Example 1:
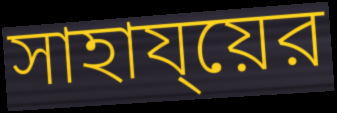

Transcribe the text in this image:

সাহায্য়ের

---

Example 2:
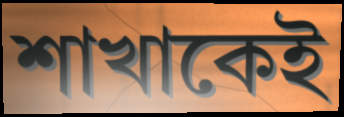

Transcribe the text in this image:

শাখাকেই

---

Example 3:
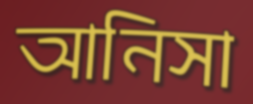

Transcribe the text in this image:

আনিসা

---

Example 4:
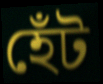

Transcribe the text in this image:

হেঁট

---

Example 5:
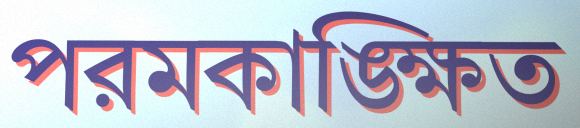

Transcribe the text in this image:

পরমকাঙ্ক্ষিত